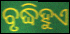
ବୃଦ୍ଧିହୁଏ